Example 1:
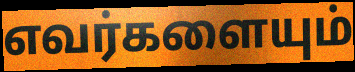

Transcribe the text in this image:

எவர்களையும்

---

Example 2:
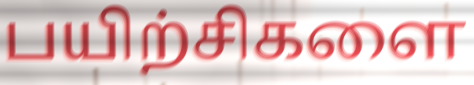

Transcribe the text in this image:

பயிற்சிகளை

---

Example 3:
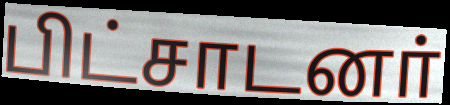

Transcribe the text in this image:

பிட்சாடனர்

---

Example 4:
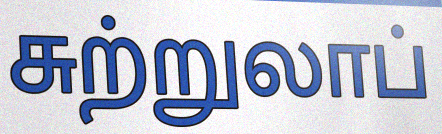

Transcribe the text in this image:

சுற்றுலாப்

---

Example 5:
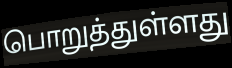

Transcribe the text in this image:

பொறுத்துள்ளது